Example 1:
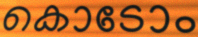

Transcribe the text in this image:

കൊടോം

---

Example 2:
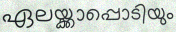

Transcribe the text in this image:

ഏലയ്ക്കാപ്പൊടിയും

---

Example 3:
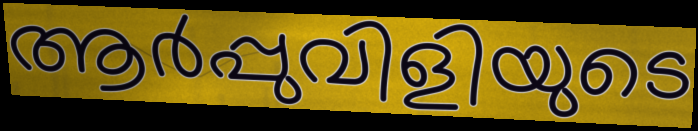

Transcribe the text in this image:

ആർപ്പുവിളിയുടെ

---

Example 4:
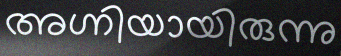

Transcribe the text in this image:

അഗ്നിയായിരുന്നു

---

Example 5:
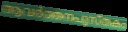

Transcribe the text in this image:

ആവർത്തനപുസ്തകം